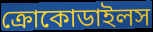
ক্রোকোডাইলস